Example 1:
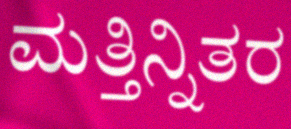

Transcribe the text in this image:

ಮತ್ತಿನ್ನಿತರ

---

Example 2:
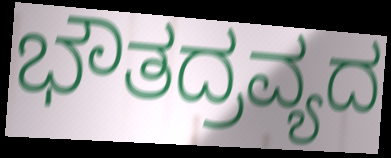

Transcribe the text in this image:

ಭೌತದ್ರವ್ಯದ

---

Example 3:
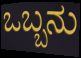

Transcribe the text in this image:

ಒಬ್ಬನು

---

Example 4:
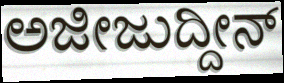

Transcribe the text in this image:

ಅಜೀಜುದ್ದೀನ್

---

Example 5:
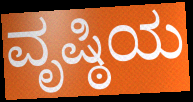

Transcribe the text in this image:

ವೃಷ್ಠಿಯ